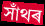
সাঁথৰ